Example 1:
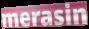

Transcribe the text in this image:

merasin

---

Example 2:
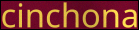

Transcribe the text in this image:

cinchona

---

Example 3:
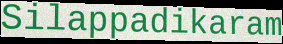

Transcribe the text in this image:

Silappadikaram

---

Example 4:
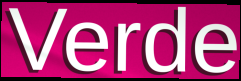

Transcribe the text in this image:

Verde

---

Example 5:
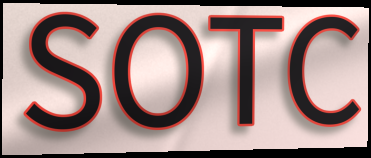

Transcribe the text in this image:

SOTC